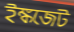
ইঙ্কজেট